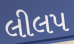
લીલપ